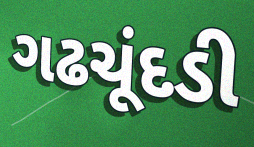
ગઢચૂંદડી